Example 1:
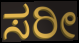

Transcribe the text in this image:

ಸರೀ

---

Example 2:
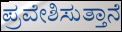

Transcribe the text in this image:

ಪ್ರವೇಶಿಸುತ್ತಾನೆ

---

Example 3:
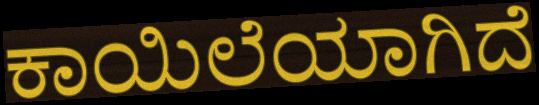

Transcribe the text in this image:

ಕಾಯಿಲೆಯಾಗಿದೆ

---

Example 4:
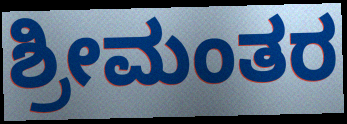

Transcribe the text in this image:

ಶ್ರೀಮಂತರ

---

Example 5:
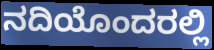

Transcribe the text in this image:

ನದಿಯೊಂದರಲ್ಲಿ